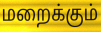
மறைக்கும்